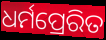
ଧର୍ମପ୍ରେରିତ